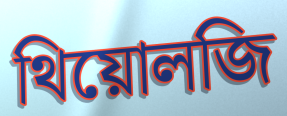
থিয়োলজি